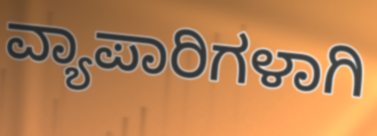
ವ್ಯಾಪಾರಿಗಳಾಗಿ